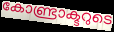
കോണ്ട്രാക്ടറുടെ